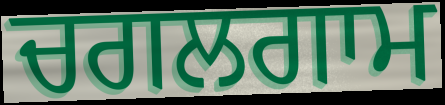
ਚਗਲਗਾਮ